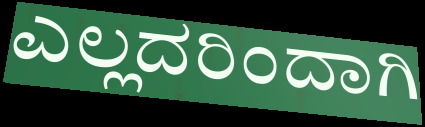
ಎಲ್ಲದರಿಂದಾಗಿ